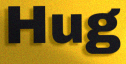
Hug